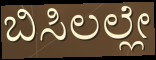
ಬಿಸಿಲಲ್ಲೇ